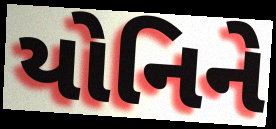
યોનિને